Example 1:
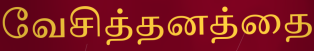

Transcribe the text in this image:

வேசித்தனத்தை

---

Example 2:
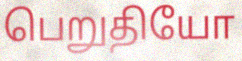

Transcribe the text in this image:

பெறுதியோ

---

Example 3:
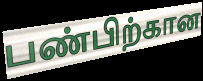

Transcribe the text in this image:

பண்பிற்கான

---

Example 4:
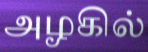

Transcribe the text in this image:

அழகில்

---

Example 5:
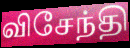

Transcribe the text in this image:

விசேந்தி